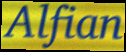
Alfian